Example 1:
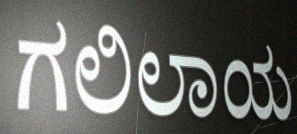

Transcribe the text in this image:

ಗಲಿಲಾಯ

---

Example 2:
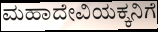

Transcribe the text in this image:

ಮಹಾದೇವಿಯಕ್ಕನಿಗೆ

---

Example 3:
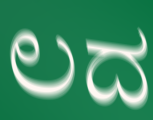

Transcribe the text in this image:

ಲದ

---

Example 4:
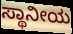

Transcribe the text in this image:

ಸ್ಥಾನೀಯ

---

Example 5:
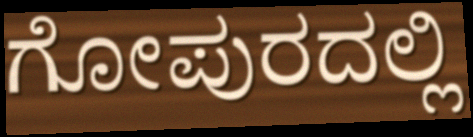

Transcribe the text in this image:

ಗೋಪುರದಲ್ಲಿ